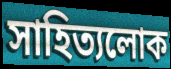
সাহিত্যলোক